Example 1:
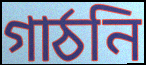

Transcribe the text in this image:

গাঠনি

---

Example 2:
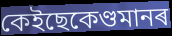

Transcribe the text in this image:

কেইছেকেণ্ডমানৰ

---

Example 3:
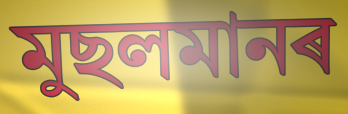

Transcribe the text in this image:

মুছলমানৰ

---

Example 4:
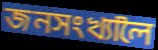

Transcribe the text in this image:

জনসংখ্যালৈ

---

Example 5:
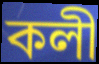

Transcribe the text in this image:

কলী